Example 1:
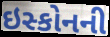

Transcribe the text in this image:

ઇસ્કોનની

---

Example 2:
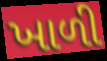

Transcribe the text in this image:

ખાળી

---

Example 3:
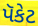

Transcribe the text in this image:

પૅકેટ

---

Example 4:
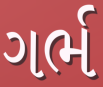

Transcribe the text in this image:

ગર્ભ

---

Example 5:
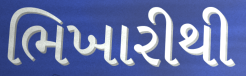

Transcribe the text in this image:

ભિખારીથી